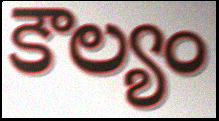
కౌల్యం